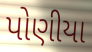
પોણીયા